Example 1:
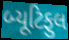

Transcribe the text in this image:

બ્યૂટિફુલ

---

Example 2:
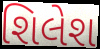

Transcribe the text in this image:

શિલેશ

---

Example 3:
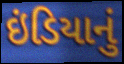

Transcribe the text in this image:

ઇંડિયાનું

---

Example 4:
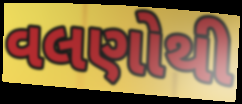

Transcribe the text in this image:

વલણોથી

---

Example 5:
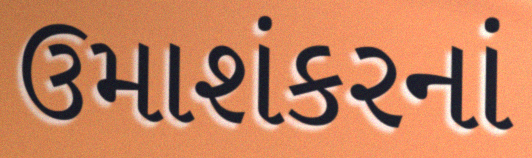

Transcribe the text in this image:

ઉમાશંકરનાં